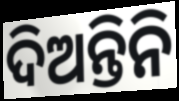
ଦିଅନ୍ତିନି